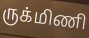
ருக்மிணி